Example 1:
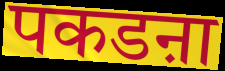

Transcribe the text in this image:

पकडऩा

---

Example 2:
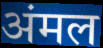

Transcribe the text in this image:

अंमल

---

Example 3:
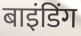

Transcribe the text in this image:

बाइंडिंग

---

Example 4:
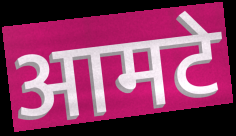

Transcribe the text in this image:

आमटे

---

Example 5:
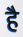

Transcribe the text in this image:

है